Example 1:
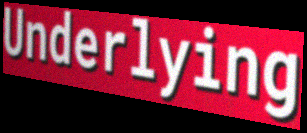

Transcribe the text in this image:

Underlying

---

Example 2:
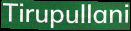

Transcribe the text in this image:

Tirupullani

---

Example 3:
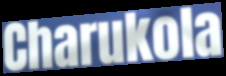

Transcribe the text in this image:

Charukola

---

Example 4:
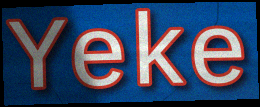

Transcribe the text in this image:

Yeke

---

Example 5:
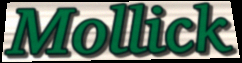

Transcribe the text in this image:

Mollick